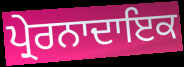
ਪ੍ਰੇਰਨਾਦਾਇਕ